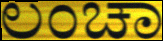
ಲಂಚಾ